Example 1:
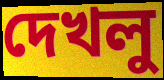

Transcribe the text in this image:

দেখলু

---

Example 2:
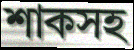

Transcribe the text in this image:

শাকসহ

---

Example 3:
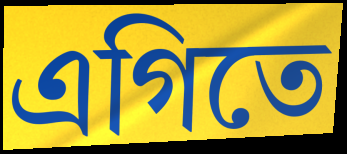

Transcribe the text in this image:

এগিতে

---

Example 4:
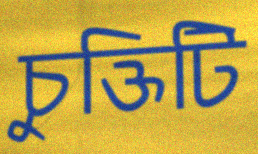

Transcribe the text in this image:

চুক্তিটি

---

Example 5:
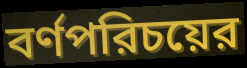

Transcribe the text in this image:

বর্ণপরিচয়ের